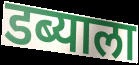
डब्याला